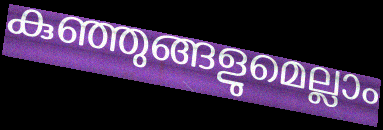
കുഞ്ഞുങ്ങളുമെല്ലാം